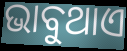
ଭାବୁଥାଏ